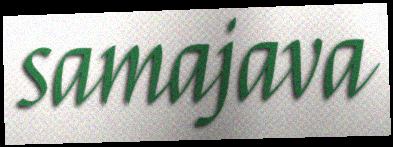
samajava